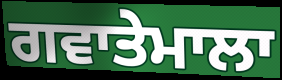
ਗਵਾਤੇਮਾਲਾ